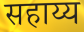
सहाय्य